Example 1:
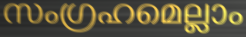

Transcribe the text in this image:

സംഗ്രഹമെല്ലാം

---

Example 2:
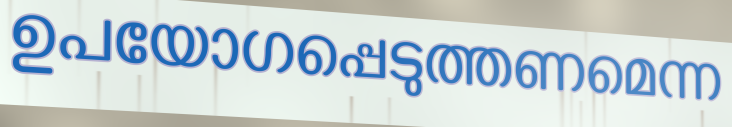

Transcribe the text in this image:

ഉപയോഗപ്പെടുത്തണമെന്ന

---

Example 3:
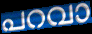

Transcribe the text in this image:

പറവാ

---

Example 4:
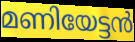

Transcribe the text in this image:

മണിയേട്ടൻ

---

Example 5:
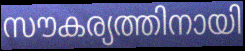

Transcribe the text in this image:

സൗകര്യത്തിനായി